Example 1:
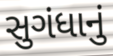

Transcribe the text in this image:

સુગંધાનું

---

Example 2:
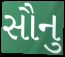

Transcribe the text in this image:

સૌનુ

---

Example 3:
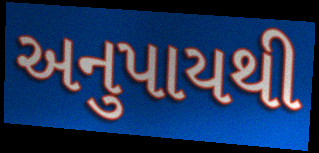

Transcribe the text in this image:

અનુપાયથી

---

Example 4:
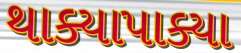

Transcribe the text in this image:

થાક્યાપાક્યા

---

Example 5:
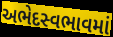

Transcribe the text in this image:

અભેદસ્વભાવમાં